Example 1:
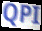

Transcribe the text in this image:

QPI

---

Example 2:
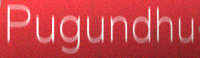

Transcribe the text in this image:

Pugundhu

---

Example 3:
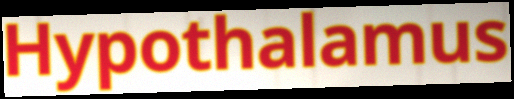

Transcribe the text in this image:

Hypothalamus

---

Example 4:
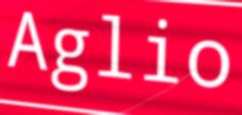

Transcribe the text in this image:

Aglio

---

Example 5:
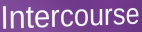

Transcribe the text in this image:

Intercourse